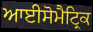
ਆਈਸੋਮੈਟ੍ਰਿਕ